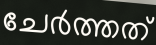
ചേർത്തത്